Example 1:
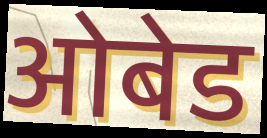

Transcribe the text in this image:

ओबेड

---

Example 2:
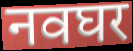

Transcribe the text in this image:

नवघर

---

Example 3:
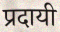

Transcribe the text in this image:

प्रदायी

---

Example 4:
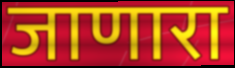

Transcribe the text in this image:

जाणारा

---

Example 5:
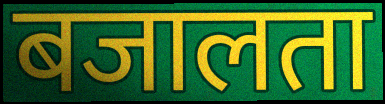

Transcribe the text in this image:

बजालता